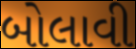
બોલાવી